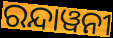
ରନ୍ଦାୱନୀ